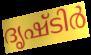
ദൃഷ്ടിർ